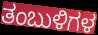
ತಂಬುಳಿಗಳ